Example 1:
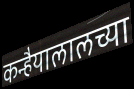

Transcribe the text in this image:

कन्हैयालालच्या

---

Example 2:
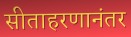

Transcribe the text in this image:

सीताहरणानंतर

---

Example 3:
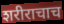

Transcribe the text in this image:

शरीराचाच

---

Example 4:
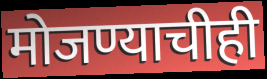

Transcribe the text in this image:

मोजण्याचीही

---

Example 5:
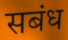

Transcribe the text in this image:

सबंध